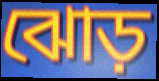
ঝোড়